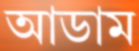
আডাম